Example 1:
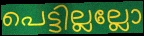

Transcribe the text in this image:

പെട്ടില്ലല്ലോ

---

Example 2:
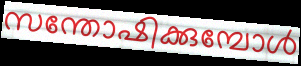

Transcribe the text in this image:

സന്തോഷിക്കുമ്പോൾ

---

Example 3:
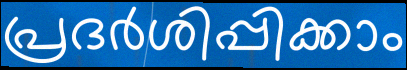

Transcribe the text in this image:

പ്രദർശിപ്പിക്കാം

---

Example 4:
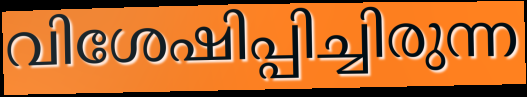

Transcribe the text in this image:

വിശേഷിപ്പിച്ചിരുന്ന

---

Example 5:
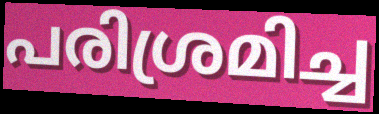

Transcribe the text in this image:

പരിശ്രമിച്ച